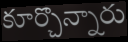
కూర్చొన్నారు